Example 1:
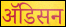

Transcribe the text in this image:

ॲडिसन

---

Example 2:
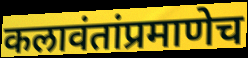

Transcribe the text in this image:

कलावंतांप्रमाणेच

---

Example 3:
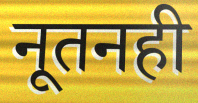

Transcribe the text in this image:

नूतनही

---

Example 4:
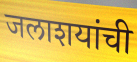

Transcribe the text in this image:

जलाशयांची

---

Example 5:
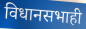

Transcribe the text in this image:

विधानसभाही